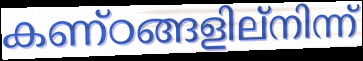
കണ്ഠങ്ങളില്നിന്ന്